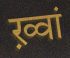
ख़्वां